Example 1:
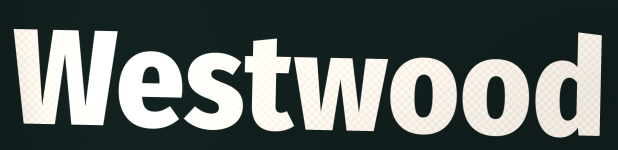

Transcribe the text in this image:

Westwood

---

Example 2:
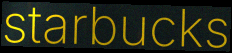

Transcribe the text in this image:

starbucks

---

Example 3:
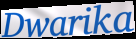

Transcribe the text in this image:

Dwarika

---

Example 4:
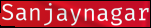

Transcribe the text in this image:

Sanjaynagar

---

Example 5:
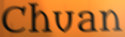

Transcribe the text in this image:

Chuan